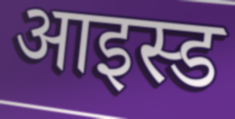
आइस्ड